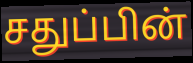
சதுப்பின்